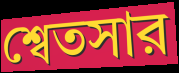
শ্বেতসার